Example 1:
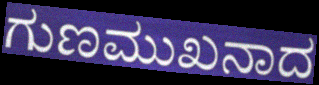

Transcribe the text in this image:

ಗುಣಮುಖನಾದ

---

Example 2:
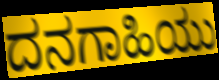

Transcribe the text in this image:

ದನಗಾಹಿಯು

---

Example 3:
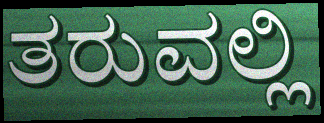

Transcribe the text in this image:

ತರುವಲ್ಲಿ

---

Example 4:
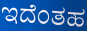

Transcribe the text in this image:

ಇದೆಂತಹ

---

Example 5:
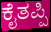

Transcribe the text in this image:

ಕೈತಪ್ಪಿ